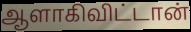
ஆளாகிவிட்டான்